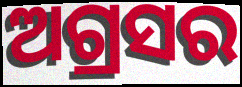
ଅଗ୍ରସର